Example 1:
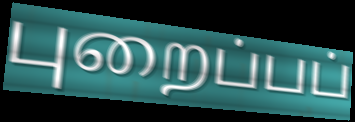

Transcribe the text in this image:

புறைப்பப்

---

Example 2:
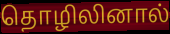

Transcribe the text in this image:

தொழிலினால்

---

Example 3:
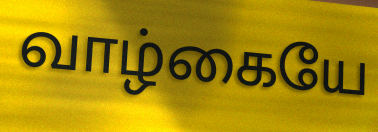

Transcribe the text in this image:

வாழ்கையே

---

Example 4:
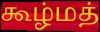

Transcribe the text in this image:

கூழ்மத்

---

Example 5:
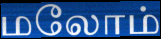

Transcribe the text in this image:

மலோம்